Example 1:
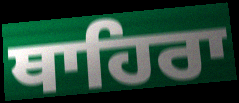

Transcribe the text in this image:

ਥਾਹਿਰਾ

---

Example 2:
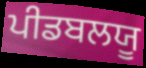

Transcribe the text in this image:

ਪੀਡਬਲਯੂ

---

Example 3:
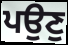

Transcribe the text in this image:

ਪਉਣੁ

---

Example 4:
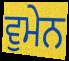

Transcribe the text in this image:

ਵੁਮੇਨ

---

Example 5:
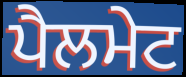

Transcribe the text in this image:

ਪੈਲਮੇਟ